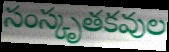
సంస్కృతకవుల